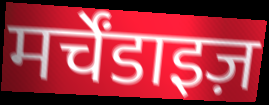
मर्चेंडाइज़